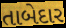
તાબેદાર